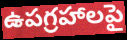
ఉపగ్రహాలపై